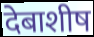
देबाशीष